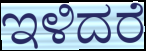
ಇಳಿದರೆ